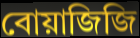
বোয়াজিজি